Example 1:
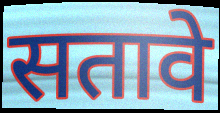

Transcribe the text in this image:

सतावे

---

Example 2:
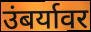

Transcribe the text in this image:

उंबर्यावर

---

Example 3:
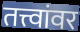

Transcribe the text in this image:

तत्त्वांवर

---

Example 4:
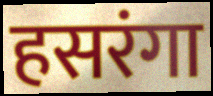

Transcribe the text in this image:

हसरंगा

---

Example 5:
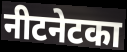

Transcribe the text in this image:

नीटनेटका